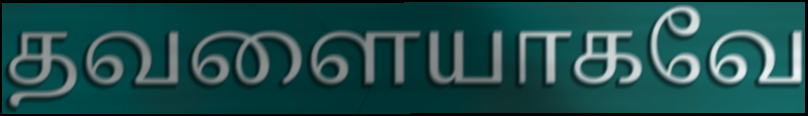
தவளையாகவே